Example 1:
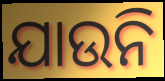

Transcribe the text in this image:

ଯାଉନି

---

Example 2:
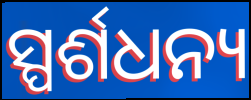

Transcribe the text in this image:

ସ୍ପର୍ଶଧନ୍ୟ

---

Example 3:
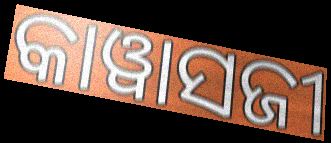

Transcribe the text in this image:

କାୱାସଜୀ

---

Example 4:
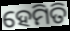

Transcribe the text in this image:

ହେମିତି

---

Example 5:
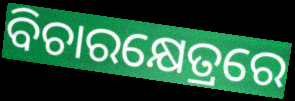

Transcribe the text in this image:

ବିଚାରକ୍ଷେତ୍ରରେ